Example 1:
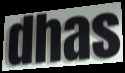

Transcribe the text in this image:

dhas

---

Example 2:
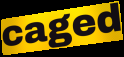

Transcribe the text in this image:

caged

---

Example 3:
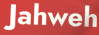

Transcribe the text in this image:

Jahweh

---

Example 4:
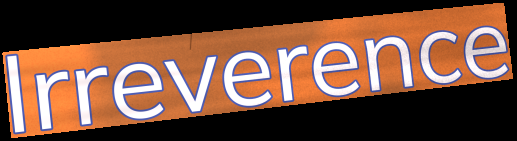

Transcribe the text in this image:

Irreverence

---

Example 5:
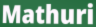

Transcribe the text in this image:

Mathuri